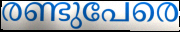
രണ്ടുപേരെ